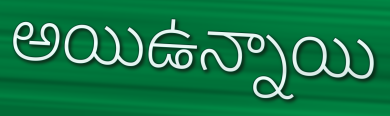
అయిఉన్నాయి